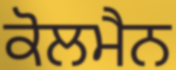
ਕੋਲਮੈਨ